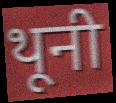
थूनी